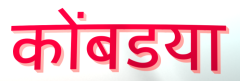
कोंबडया